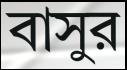
বাসুর